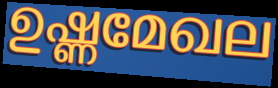
ഉഷ്ണമേഖല